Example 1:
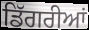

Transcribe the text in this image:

ਡਿੱਗਰੀਆਂ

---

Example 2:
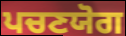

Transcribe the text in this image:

ਪਚਣਯੋਗ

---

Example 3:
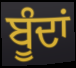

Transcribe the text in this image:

ਬੂੰਦਾਂ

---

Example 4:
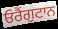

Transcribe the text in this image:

ਓਰੈਂਗੁਟਾਨ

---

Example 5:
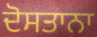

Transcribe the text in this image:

ਦੋਸਤਾਨਾ